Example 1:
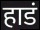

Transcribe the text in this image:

हाडं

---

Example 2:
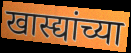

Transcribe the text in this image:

खास्द्यांच्या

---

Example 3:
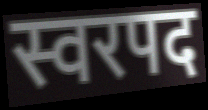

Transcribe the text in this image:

स्वरपद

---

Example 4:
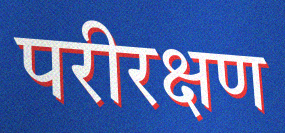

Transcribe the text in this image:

परीरक्षण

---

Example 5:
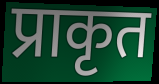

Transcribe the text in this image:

प्राकृत